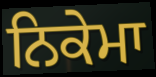
ਨਿਕੇਮਾ